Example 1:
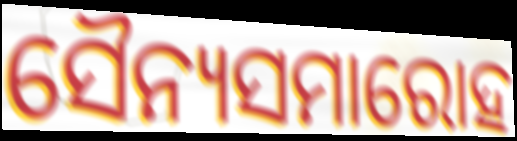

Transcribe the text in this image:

ସୈନ୍ୟସମାରୋହ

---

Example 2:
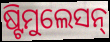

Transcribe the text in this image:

ଷ୍ଟିମୁଲେସନ୍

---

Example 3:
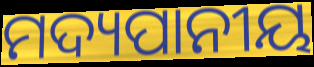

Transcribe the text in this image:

ମଦ୍ୟପାନୀୟ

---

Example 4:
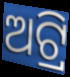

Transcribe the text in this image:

ଅଟ୍ରି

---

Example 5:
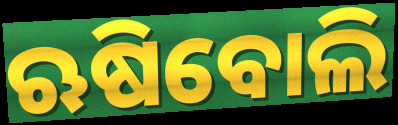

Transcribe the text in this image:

ଋଷିବୋଲି